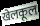
खेलकूल